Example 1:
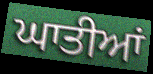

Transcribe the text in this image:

ਘਾਤੀਆਂ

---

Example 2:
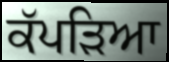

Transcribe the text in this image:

ਕੱਪੜਿਆ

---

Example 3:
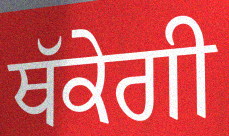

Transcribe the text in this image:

ਥੱਕੇਗੀ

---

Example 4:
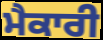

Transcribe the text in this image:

ਮੈਕਾਰੀ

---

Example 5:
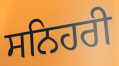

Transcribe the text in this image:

ਸਨਿਹਰੀ